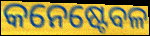
କନେଷ୍ଟେବଳ